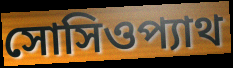
সোসিওপ্যাথ